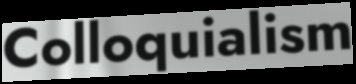
Colloquialism